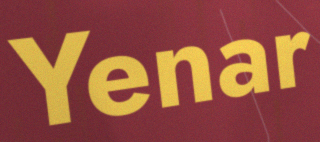
Yenar